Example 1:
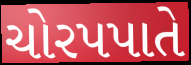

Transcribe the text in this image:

ચોરપપાતે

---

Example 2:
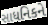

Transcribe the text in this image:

સાધનિકને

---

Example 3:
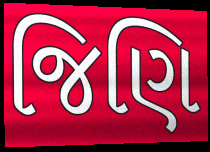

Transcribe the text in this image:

જિણિ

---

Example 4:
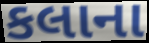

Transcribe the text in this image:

કલાના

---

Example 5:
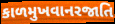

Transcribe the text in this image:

કાળમુખવાનરજાતિ